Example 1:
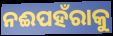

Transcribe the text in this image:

ନଈପହଁରାକୁ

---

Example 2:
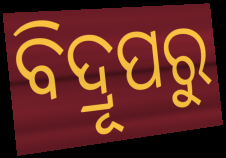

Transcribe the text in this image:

ବିଦ୍ରୂପରୁ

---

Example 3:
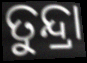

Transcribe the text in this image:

ତୁନ୍ଦ୍ରା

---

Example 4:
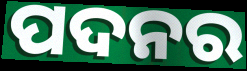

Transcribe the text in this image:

ପଦନର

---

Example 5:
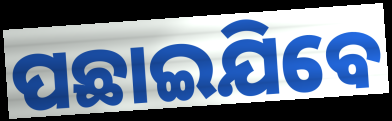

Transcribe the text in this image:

ପଛାଇଯିବେ